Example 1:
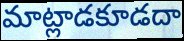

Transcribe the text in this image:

మాట్లాడకూడదా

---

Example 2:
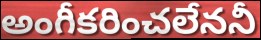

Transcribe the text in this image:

అంగీకరించలేననీ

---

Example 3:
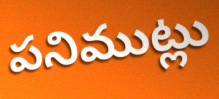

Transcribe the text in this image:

పనిముట్లు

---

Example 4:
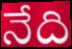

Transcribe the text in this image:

నేది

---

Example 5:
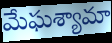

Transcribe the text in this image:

మేఘశ్యామా